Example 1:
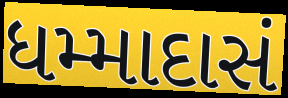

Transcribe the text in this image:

ધમ્માદાસં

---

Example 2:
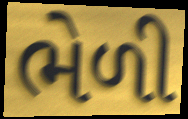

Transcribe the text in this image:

ભેળી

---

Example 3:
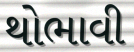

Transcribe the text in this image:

થોભાવી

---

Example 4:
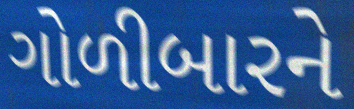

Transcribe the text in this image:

ગોળીબારને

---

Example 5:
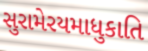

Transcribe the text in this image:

સુરામેરયમાધુકાતિ